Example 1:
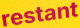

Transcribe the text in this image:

restant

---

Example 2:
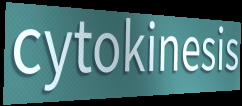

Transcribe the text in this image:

cytokinesis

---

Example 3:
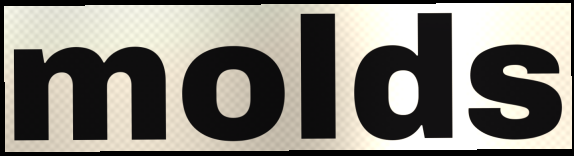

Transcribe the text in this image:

molds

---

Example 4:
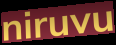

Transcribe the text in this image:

niruvu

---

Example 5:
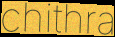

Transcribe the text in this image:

chithra